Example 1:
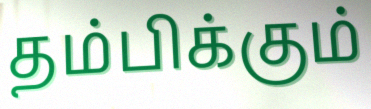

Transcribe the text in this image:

தம்பிக்கும்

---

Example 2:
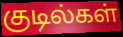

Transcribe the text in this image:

குடில்கள்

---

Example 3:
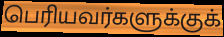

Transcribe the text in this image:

பெரியவர்களுக்குக்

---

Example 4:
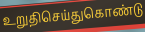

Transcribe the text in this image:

உறுதிசெய்துகொண்டு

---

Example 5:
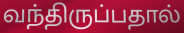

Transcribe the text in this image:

வந்திருப்பதால்